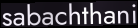
sabachthani